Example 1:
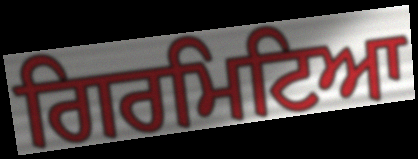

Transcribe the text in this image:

ਗਿਰਮਿਟਿਆ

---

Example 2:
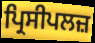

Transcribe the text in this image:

ਪ੍ਰਿਸੀਪਲਜ਼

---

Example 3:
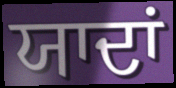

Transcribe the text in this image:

ਯਾਦਾਂ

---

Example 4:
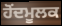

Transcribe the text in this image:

ਹੋਂਦਮੂਲਕ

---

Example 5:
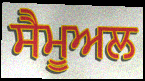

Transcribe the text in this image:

ਸੈਮੂਅਲ